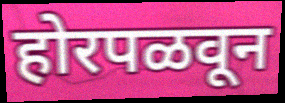
होरपळवून